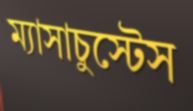
ম্যাসাচুস্টেস